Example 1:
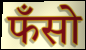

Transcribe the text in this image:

फँसो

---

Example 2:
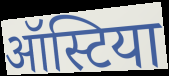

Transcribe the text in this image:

ऑस्टिया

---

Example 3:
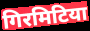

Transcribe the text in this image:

गिरमिटिया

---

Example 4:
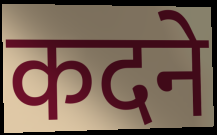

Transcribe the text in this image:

कदने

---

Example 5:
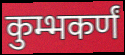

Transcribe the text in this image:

कुम्भकर्णं